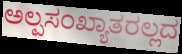
ಅಲ್ಪಸಂಖ್ಯಾತರಲ್ಲದ